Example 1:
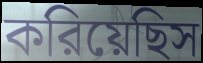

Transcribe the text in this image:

করিয়েছিস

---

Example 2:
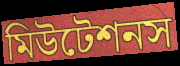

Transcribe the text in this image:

মিউটেশনস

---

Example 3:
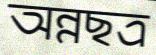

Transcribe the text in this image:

অন্নছত্র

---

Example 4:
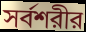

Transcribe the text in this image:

সর্বশরীর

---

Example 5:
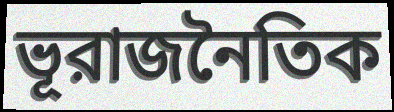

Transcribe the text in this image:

ভূরাজনৈতিক